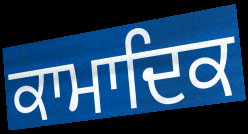
ਕਾਮਾਦਿਕ